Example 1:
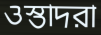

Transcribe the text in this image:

ওস্তাদরা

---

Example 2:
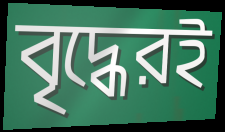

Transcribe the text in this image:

বৃদ্ধেরই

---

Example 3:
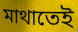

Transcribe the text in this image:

মাথাতেই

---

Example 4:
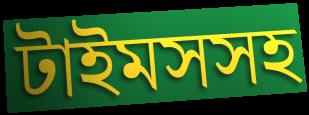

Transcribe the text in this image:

টাইমসসহ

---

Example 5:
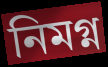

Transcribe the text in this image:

নিমগ্ন